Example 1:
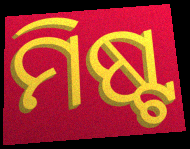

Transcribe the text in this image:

ମିଷ୍ଟ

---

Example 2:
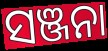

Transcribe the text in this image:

ସଞ୍ଜନା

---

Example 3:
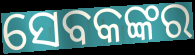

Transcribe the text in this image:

ସେବକଙ୍କର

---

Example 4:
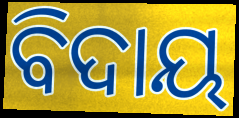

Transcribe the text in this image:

ବିଦାୟ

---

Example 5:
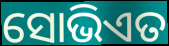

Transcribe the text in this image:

ସୋଭିଏତ